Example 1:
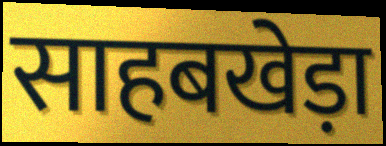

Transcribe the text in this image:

साहबखेड़ा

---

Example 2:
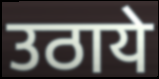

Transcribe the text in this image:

उठाये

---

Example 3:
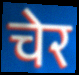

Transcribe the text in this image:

चेर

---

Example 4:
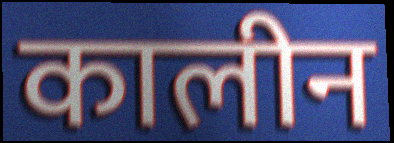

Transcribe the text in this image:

कालीन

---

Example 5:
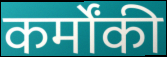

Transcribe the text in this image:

कर्मोंकी